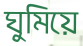
ঘুমিয়ে